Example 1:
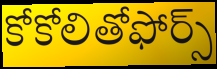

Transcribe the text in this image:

కోకోలితోఫోర్స్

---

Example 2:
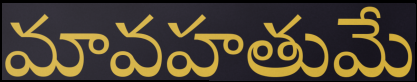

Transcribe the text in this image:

మావహతుమే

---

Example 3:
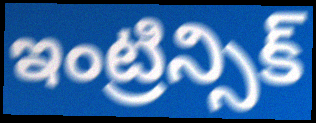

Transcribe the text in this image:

ఇంట్రిన్సిక్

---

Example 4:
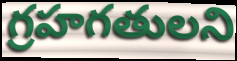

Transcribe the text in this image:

గ్రహగతులని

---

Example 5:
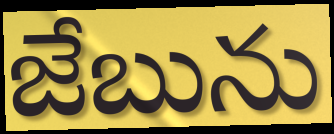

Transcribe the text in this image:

జేబును